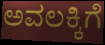
ಅವಲಕ್ಕಿಗೆ